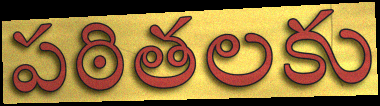
పఠితలకు